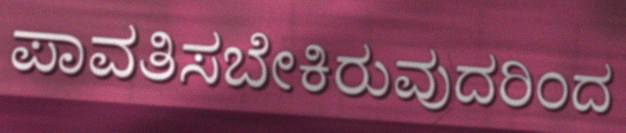
ಪಾವತಿಸಬೇಕಿರುವುದರಿಂದ